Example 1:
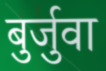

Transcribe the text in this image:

बुर्जुवा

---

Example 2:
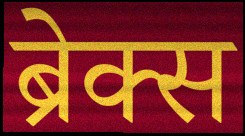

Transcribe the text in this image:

ब्रेक्स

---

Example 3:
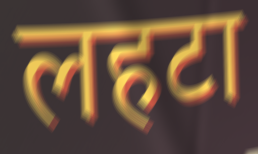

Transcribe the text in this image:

लहटा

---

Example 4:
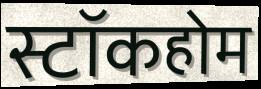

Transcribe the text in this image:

स्टॉकहोम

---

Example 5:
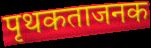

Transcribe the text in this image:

पृथकताजनक